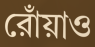
রোঁয়াও